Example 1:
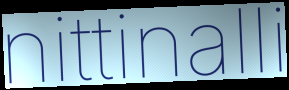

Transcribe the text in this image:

nittinalli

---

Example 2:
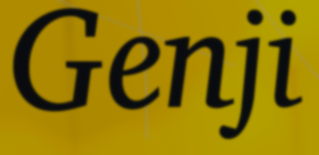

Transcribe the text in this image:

Genji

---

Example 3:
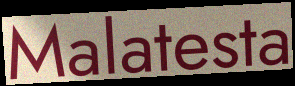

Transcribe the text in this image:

Malatesta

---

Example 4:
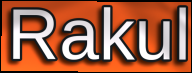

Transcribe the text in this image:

Rakul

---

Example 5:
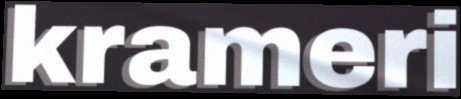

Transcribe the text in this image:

krameri